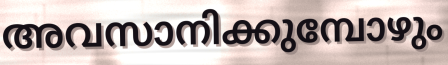
അവസാനിക്കുമ്പോഴും